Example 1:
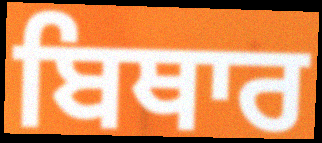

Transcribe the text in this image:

ਬਿਥਾਰ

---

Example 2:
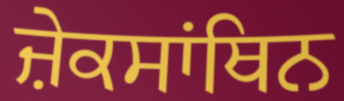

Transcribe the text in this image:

ਜ਼ੇਕਸਾਂਥਿਨ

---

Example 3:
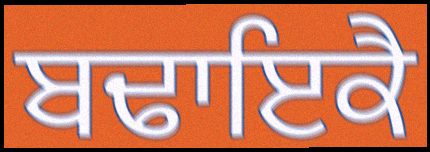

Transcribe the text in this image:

ਬਢਾਇਕੈ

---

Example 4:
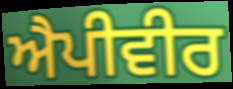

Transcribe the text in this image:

ਐਪੀਵੀਰ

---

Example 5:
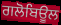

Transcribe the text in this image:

ਗਲੋਬਿਊਲ